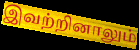
இவற்றினாலும்